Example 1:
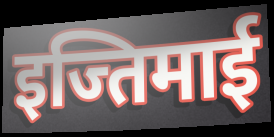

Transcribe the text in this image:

इज्तिमाई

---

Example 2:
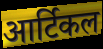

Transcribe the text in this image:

आर्टिकल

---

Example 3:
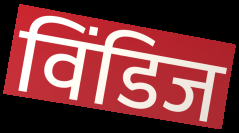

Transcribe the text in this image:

विंडिज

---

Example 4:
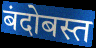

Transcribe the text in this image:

बंदोबस्त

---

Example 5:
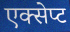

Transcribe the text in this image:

एक्सेप्ट